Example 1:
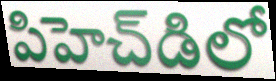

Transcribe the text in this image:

పిహెచ్‌డిలో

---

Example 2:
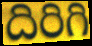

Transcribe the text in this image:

దిరిగి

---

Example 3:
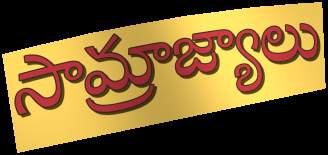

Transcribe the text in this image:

సామ్రాజ్యాలు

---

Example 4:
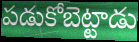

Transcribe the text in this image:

పడుకోబెట్టాడు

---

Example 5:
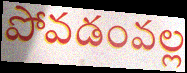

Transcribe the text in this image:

పోవడంవల్ల